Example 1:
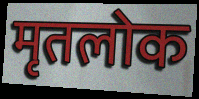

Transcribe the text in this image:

मृतलोक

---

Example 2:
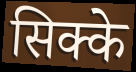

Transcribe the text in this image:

सिक्के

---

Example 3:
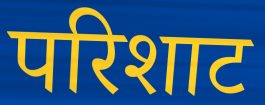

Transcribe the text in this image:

परिशाट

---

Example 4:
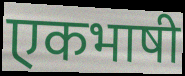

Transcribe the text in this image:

एकभाषी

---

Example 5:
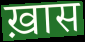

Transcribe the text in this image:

ख़ास